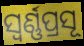
ସ୍ଵର୍ଣ୍ଣପ୍ରସୂ